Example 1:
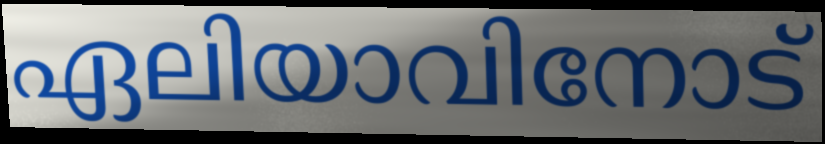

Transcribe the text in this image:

ഏലിയാവിനോട്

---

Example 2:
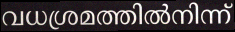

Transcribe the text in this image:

വധശ്രമത്തിൽനിന്ന്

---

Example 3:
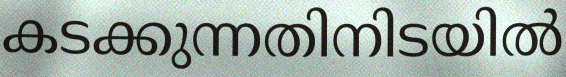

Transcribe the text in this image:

കടക്കുന്നതിനിടയിൽ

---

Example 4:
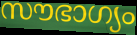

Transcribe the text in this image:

സൗഭാഗ്യം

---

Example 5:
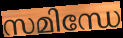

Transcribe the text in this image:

സമിന്ധേ